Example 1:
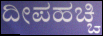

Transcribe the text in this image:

ದೀಪಹಚ್ಚಿ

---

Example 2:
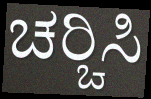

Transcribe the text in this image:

ಚರ‍್ಚಿಸಿ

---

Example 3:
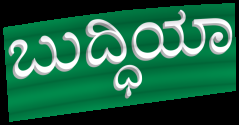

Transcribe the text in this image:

ಬುದ್ಧಿಯಾ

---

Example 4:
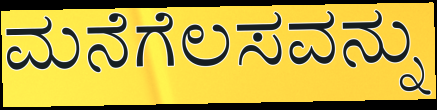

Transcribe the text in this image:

ಮನೆಗೆಲಸವನ್ನು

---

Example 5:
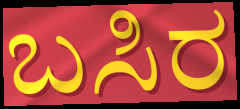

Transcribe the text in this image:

ಬಸಿರ